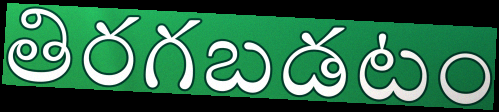
తిరగబడటం